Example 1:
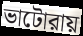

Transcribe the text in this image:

ভাটোরায়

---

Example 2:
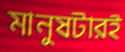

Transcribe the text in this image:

মানুষটারই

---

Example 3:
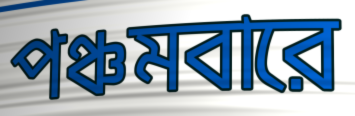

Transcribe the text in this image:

পঞ্চমবারে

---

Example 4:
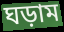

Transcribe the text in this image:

ঘড়াম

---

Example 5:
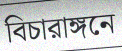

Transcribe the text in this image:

বিচারাঙ্গনে